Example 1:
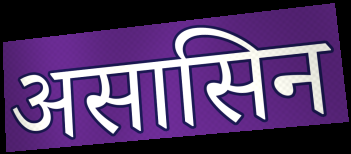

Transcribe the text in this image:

असासिन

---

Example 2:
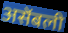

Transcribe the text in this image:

असेंबली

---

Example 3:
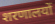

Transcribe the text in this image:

शरणालयों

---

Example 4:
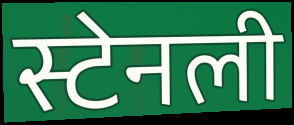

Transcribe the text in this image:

स्टेनली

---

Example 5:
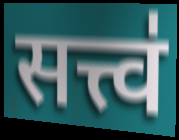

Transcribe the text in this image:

सत्त्व॑